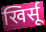
खिर्सू